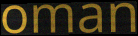
oman